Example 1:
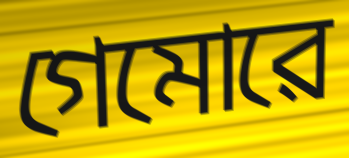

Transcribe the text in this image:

গেমোৱে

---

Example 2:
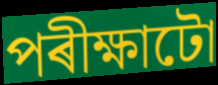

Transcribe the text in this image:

পৰীক্ষাটো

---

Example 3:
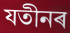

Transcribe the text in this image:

যতীনৰ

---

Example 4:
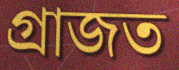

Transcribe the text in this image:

গ্ৰাজত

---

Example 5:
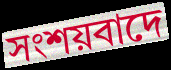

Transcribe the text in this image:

সংশয়বাদে